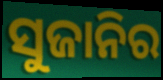
ସୁଜାନିର